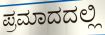
ಪ್ರಮಾದದಲ್ಲಿ